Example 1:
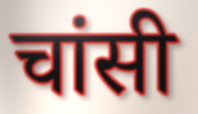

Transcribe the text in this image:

चांसी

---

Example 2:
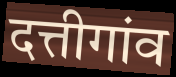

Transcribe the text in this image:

दत्तीगांव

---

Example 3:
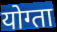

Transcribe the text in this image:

योग्ता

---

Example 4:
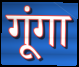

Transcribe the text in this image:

गूंगा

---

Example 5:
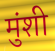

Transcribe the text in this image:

मुंशी